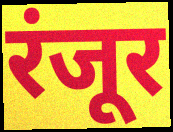
रंजूर